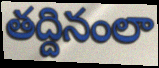
తద్దినంలా